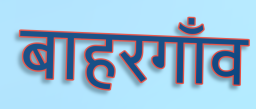
बाहरगाँव